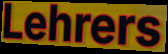
Lehrers